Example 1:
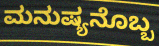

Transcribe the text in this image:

ಮನುಷ್ಯನೊಬ್ಬ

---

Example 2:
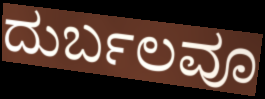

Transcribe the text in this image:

ದುರ್ಬಲವೂ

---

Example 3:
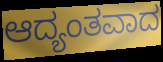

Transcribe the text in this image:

ಆದ್ಯಂತವಾದ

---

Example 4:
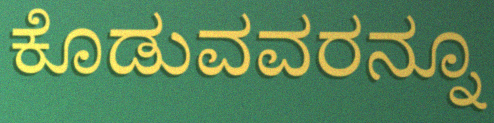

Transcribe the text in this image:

ಕೊಡುವವರನ್ನೂ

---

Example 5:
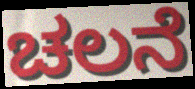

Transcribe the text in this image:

ಚಲನೆ